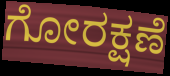
ಗೋರಕ್ಷಣೆ